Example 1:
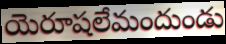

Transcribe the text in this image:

యెరూషలేమందుండు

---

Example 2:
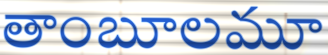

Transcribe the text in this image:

తాంబూలమూ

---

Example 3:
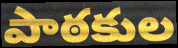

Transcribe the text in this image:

పాఠకుల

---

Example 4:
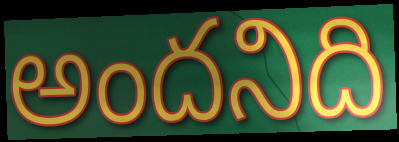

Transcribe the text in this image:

అందనిది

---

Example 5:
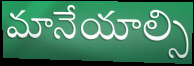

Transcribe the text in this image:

మానేయాల్సి